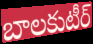
బాలకుటీర్